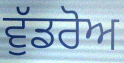
ਵੁੱਡਰੋਅ